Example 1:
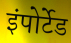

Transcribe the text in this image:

इंपोर्टेड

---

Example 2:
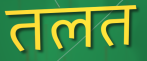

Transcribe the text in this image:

तलत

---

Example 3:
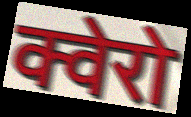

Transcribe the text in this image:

क्वेरो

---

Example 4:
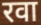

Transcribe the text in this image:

रवा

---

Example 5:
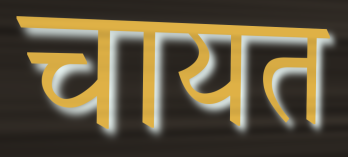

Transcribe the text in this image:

चायत